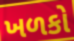
ખળકો